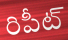
రిపీట్